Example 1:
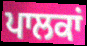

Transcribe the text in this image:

ਪਾਲਕਾਂ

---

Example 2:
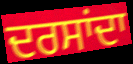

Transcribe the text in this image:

ਦਰਸਾਂਦਾ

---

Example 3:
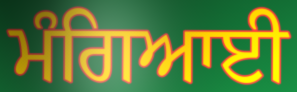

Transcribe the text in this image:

ਮੰਗਿਆਈ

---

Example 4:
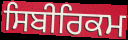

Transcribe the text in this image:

ਸਿਬੀਰਿਕਮ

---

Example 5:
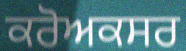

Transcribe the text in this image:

ਕਰੋਅਕਸਰ